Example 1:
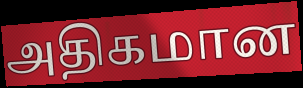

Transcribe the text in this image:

அதிகமான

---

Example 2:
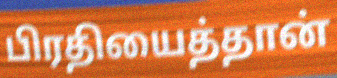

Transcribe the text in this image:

பிரதியைத்தான்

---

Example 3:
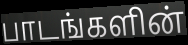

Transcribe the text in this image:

பாடங்களின்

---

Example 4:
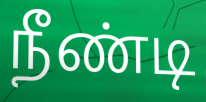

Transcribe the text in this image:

நீண்டி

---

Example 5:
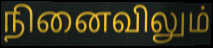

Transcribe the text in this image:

நினைவிலும்